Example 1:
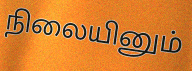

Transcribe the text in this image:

நிலையினும்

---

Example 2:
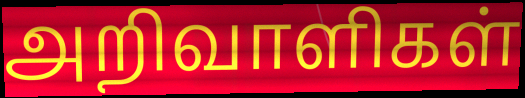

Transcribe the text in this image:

அறிவாளிகள்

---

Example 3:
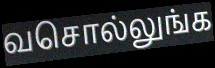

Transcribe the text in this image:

வசொல்லுங்க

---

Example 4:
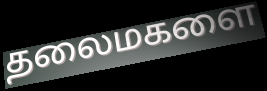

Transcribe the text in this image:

தலைமகளை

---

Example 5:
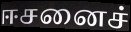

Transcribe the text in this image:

ஈசனைச்